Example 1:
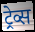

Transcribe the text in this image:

ट्रेव्स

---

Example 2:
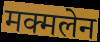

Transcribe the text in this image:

मक्मलेन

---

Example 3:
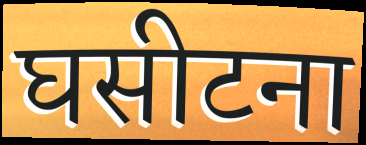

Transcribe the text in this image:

घसीटना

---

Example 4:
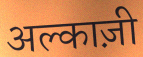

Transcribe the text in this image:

अल्काज़ी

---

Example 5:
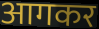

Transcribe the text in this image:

आगकर